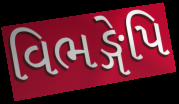
વિભઙ્ગેપિ